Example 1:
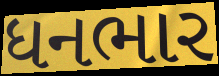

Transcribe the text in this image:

ધનભાર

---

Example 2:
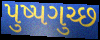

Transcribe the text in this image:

પુષ્પગુચ્છ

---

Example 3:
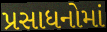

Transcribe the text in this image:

પ્રસાધનોમાં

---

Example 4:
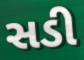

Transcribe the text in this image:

સડી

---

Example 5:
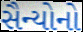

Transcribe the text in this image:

સૈન્યોનો